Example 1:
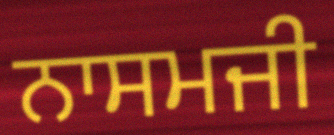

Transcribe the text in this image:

ਨਾਸਮਜੀ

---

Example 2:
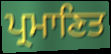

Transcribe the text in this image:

ਪ੍ਰਮਾਣਿਤ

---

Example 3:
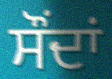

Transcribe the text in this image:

ਸੌਂਦਾਂ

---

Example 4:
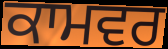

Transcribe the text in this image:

ਕਾਮਵਰ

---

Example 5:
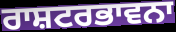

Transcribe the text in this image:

ਰਾਸ਼ਟਰਭਾਵਨਾ